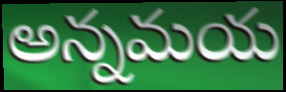
అన్నమయ